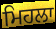
ਮਿਹਲਾ